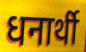
धनार्थी